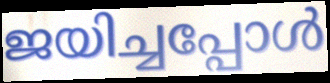
ജയിച്ചപ്പോൾ